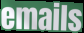
emails